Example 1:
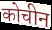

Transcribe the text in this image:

कोचीन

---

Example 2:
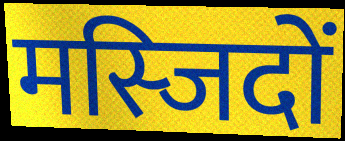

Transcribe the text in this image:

मस्‍जिदों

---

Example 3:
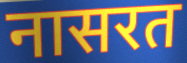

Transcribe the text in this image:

नासरत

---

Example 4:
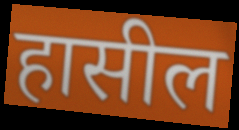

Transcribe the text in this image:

हासील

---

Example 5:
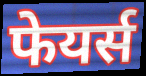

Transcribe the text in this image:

फेयर्स